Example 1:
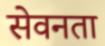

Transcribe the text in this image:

सेवनता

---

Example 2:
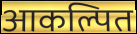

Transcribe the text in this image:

आकल्पित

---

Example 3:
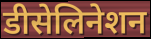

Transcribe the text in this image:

डीसेलिनेशन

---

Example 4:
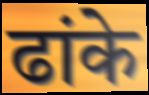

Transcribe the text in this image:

ढांके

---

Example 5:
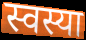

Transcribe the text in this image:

स्वस्या